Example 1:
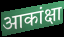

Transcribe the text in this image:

आकांक्षा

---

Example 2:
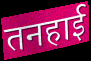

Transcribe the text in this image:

तनहाई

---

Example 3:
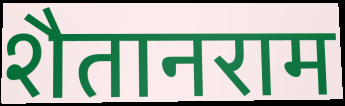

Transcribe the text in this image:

शैतानराम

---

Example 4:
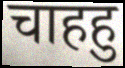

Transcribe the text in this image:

चाहहु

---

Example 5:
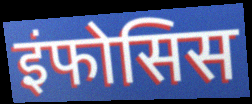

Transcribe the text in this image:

इंफोसिस